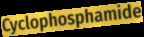
Cyclophosphamide